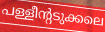
പള്ളീന്റടുക്കലെ